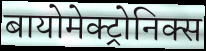
बायोमेक्ट्रोनिक्स